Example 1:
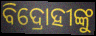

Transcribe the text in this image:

ବିଦ୍ରୋହୀଙ୍କୁ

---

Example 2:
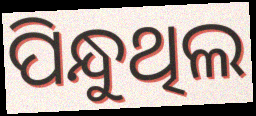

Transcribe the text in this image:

ପିନ୍ଧୁଥିଲ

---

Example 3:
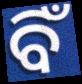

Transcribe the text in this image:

ବିଁ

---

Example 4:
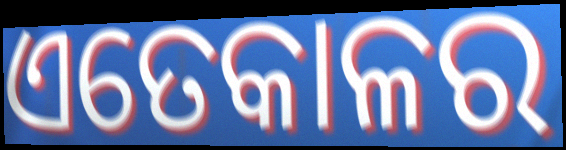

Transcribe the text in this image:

ଏତେକାଳର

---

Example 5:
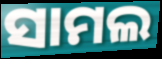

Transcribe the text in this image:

ସାମଲ